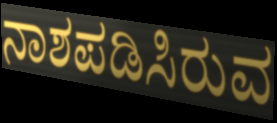
ನಾಶಪಡಿಸಿರುವ